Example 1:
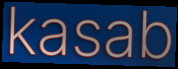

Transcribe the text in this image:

kasab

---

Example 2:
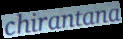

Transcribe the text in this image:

chirantana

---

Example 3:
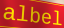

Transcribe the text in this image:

albel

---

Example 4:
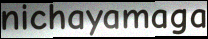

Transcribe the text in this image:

nichayamaga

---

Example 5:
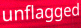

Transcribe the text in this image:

unflagged